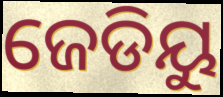
ଜେଡିୟୁ